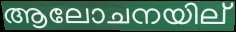
ആലോചനയില്